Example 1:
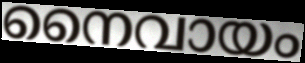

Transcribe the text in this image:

നൈവായം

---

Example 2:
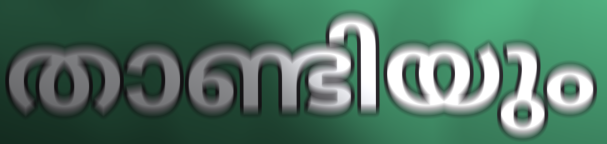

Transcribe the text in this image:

താണ്ടിയും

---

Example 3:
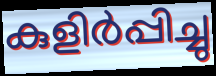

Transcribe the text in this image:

കുളിർപ്പിച്ചു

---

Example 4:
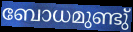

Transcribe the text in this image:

ബോധമുണ്ടു്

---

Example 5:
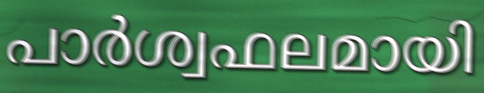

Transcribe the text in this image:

പാർശ്വഫലമായി